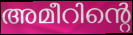
അമീറിന്റെ